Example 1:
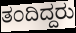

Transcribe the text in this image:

ತಂದಿದ್ದರು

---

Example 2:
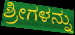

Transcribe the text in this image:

ಶ್ರೀಗಳನ್ನು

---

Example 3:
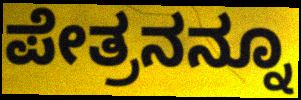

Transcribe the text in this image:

ಪೇತ್ರನನ್ನೂ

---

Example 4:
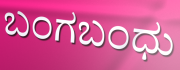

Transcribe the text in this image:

ಬಂಗಬಂಧು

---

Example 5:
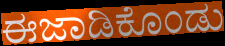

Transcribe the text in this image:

ಈಜಾಡಿಕೊಂಡು